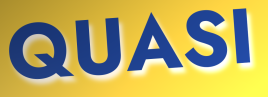
QUASI